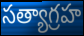
సత్యాగ్రహ